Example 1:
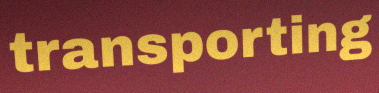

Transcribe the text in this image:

transporting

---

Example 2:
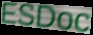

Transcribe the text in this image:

ESDoc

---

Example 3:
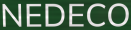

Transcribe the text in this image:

NEDECO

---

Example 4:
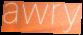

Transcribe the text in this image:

awry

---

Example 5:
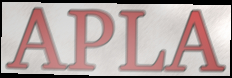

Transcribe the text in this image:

APLA